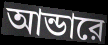
আন্ডারে